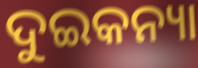
ଦୁଇକନ୍ୟା